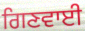
ਗਿਣਵਾਈ